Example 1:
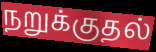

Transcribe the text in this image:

நறுக்குதல்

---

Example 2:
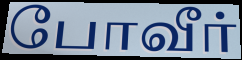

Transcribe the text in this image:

போவீர்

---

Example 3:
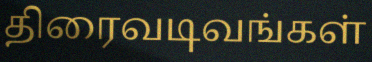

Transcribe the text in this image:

திரைவடிவங்கள்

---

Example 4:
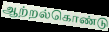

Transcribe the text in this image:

ஆற்றல்கொண்டு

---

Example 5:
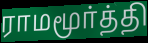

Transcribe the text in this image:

ராமமூர்த்தி